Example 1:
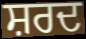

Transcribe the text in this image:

ਸ਼ਰਦ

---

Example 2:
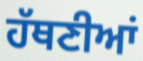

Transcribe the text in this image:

ਹੱਥਣੀਆਂ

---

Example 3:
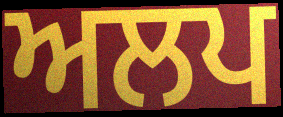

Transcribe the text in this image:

ਅਲਪ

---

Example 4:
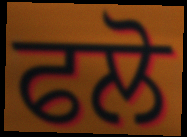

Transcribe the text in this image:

ਫਲੋ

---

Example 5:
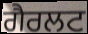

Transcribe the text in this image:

ਗੈਰਲਟ